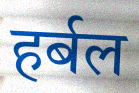
हर्बल